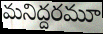
మనిద్దరమూ